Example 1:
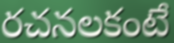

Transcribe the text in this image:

రచనలకంటే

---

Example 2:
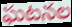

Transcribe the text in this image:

ఘటనల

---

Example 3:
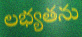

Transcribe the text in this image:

లభ్యతను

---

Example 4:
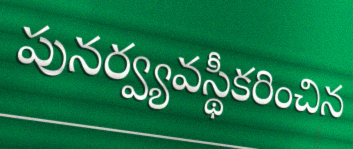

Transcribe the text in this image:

పునర్వ్యవస్థీకరించిన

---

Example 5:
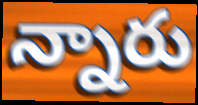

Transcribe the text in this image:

న్నారు